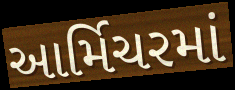
આર્મિચરમાં